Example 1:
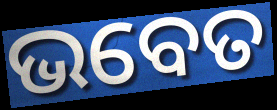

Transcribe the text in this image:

ଭବେତ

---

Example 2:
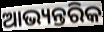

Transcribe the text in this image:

ଆଭ୍ୟନ୍ତରିକ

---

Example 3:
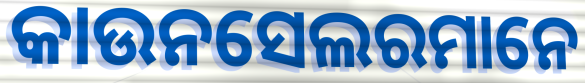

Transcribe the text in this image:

କାଉନସେଲରମାନେ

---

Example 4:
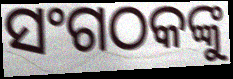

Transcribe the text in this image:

ସଂଗଠକଙ୍କୁ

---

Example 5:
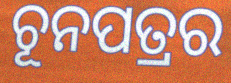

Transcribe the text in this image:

ଚୂନପତ୍ରର